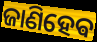
ଜାଣିହେଵ